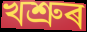
খশ্ৰুৰ